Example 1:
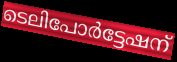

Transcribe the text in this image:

ടെലിപോർട്ടേഷന്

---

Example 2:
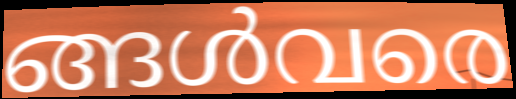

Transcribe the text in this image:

ങ്ങൾവരെ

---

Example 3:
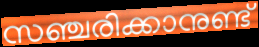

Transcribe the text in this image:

സഞ്ചരിക്കാനുണ്ട്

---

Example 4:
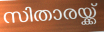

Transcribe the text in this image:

സിതാരയ്ക്ക്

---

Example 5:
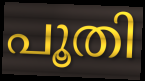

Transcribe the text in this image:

പൂതി